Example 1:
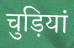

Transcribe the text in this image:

चुड़ियां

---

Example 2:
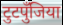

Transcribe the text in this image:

टुटपुँजिया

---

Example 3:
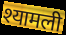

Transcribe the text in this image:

श्यामली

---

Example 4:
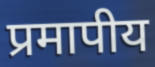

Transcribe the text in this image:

प्रमापीय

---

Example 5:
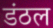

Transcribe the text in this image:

डंठल